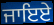
ਜਾਇਏ